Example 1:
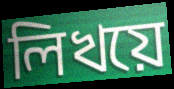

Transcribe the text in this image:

লিখয়ে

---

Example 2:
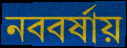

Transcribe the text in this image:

নববর্ষায়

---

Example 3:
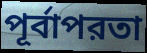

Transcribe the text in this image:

পূর্বাপরতা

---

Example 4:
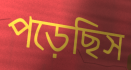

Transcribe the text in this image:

পড়েছিস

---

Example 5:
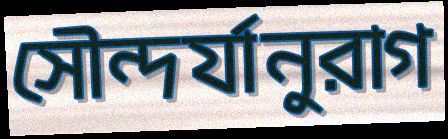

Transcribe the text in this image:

সৌন্দর্যানুরাগ